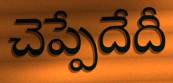
చెప్పేదేదీ